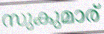
സുകുമാര്